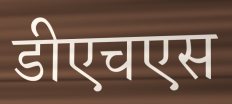
डीएचएस